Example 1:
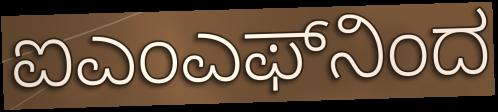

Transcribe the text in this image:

ಐಎಂಎಫ್‌ನಿಂದ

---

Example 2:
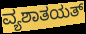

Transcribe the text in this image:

ವ್ಯಶಾತಯತ್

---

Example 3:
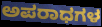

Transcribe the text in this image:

ಅಪರಾಧಗಳ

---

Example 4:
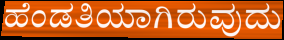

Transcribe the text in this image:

ಹೆಂಡತಿಯಾಗಿರುವುದು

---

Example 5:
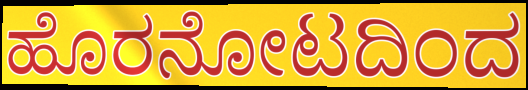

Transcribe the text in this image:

ಹೊರನೋಟದಿಂದ